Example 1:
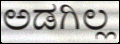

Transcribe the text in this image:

ಅಡಗಿಲ್ಲ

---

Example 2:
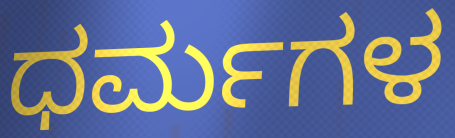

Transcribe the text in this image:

ಧರ್ಮಗಳ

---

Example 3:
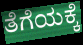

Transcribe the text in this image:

ತೆಗೆಯಕ್ಕೆ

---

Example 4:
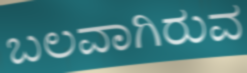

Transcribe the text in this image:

ಬಲವಾಗಿರುವ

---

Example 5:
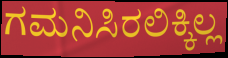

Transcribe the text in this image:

ಗಮನಿಸಿರಲಿಕ್ಕಿಲ್ಲ